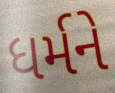
ધર્મને